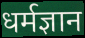
धर्मज्ञान